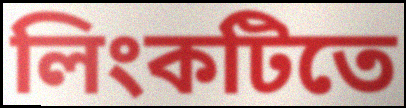
লিংকটিতে